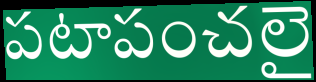
పటాపంచలై